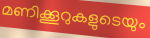
മണിക്കൂറുകളുടെയും